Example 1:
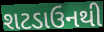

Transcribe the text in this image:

શટડાઉનથી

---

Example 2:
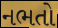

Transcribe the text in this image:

નભતો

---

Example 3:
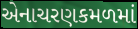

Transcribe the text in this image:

એનાચરણકમળમાં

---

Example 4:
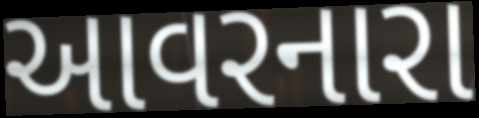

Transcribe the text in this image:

આવરનારા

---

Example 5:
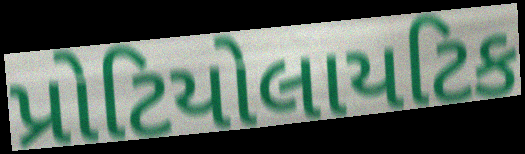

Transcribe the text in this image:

પ્રોટિયોલાયટિક